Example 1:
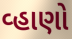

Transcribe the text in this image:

વ્હાણો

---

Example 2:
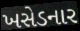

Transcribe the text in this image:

ખસેડનાર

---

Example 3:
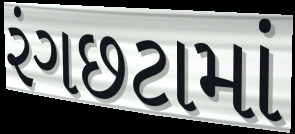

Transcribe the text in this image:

રંગછટામાં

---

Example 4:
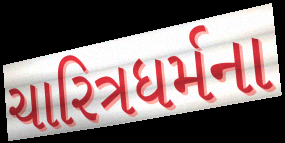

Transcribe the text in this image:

ચારિત્રધર્મના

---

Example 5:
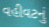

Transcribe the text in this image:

વહીવટનું